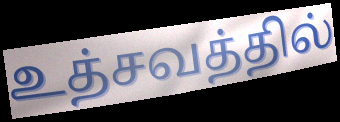
உத்சவத்தில்